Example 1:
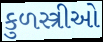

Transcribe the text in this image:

કુળસ્ત્રીઓ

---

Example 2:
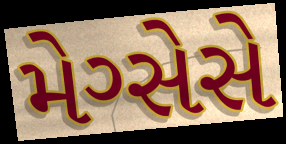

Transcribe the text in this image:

મેગ્સેસે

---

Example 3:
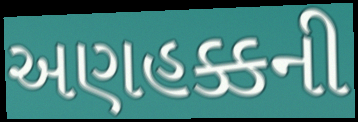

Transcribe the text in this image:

અણહક્કની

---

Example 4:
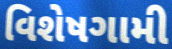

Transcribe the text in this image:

વિશેષગામી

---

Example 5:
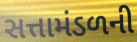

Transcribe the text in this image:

સત્તામંડળની